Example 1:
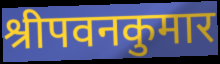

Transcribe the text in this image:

श्रीपवनकुमार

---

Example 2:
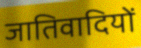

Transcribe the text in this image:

जातिवादियों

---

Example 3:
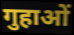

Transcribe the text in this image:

गुहाओं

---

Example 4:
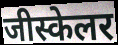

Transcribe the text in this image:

जीस्केलर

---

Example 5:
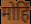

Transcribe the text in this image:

मोहिं